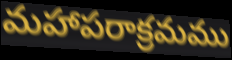
మహాపరాక్రమము